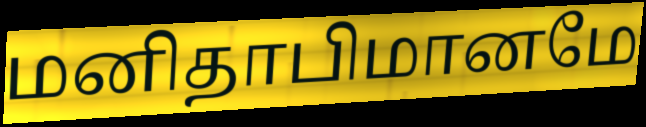
மனிதாபிமானமே